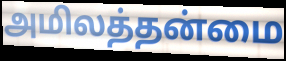
அமிலத்தன்மை